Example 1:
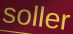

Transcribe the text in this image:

soller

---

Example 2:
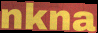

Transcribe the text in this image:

nkna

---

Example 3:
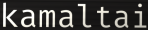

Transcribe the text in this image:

kamaltai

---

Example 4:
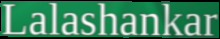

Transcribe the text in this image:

Lalashankar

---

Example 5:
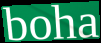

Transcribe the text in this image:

boha